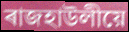
ৰাজহাউলীয়ে